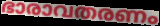
ഭാരാവതരണം